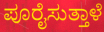
ಪೂರೈಸುತ್ತಾಳೆ